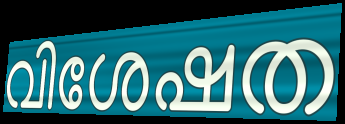
വിശേഷത